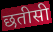
छतीसी